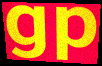
gp